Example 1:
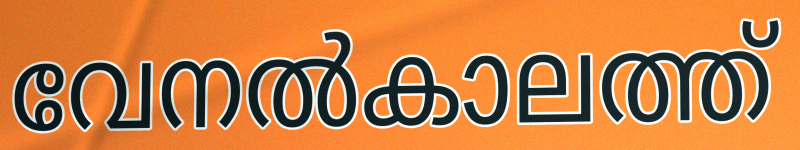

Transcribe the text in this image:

വേനൽകാലത്ത്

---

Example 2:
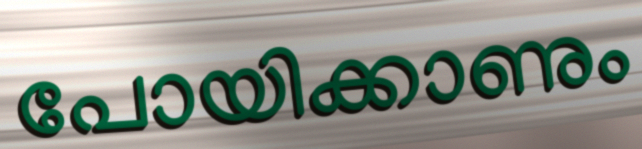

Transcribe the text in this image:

പോയിക്കാണും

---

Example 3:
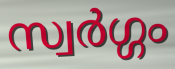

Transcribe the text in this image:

സ്വർഗ്ഗം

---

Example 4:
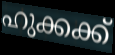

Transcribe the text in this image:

ഹുക്കക്ക്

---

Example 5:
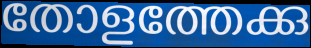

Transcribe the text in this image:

തോളത്തേക്കു